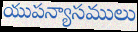
యుపన్యాసములు